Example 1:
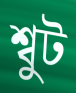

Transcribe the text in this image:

শ্বুট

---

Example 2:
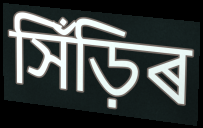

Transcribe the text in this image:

সিঁড়িৰ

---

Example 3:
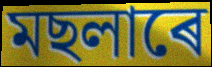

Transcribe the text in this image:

মছলাৰে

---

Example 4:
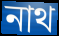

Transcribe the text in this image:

নাথ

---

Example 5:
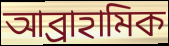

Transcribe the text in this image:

আব্ৰাহামিক